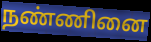
நண்ணினை